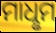
ମାଧୢମ